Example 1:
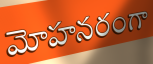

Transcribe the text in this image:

మోహనరంగా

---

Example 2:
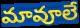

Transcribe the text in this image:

మావూలే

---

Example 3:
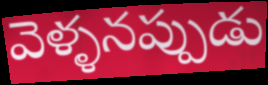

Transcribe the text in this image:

వెళ్ళనప్పుడు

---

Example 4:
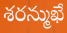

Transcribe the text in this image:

శరన్ముఖే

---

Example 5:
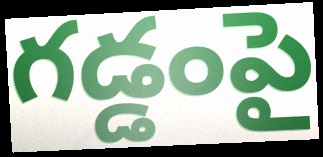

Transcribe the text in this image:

గడ్డంపై